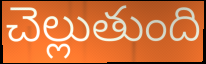
చెల్లుతుంది